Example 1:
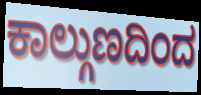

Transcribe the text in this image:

ಕಾಲ್ಗುಣದಿಂದ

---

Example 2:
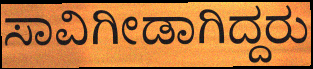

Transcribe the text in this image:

ಸಾವಿಗೀಡಾಗಿದ್ದರು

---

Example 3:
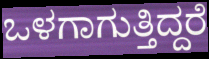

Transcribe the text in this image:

ಒಳಗಾಗುತ್ತಿದ್ದರೆ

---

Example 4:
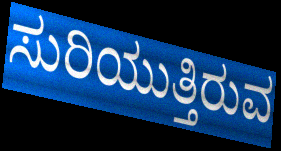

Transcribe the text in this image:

ಸುರಿಯುತ್ತಿರುವ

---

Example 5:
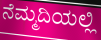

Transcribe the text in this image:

ನೆಮ್ಮದಿಯಲ್ಲಿ